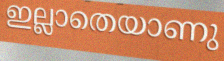
ഇല്ലാതെയാണു